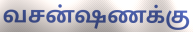
வசன்ஷணக்கு